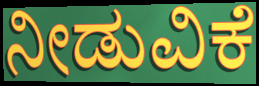
ನೀಡುವಿಕೆ